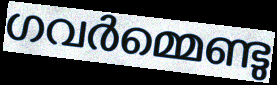
ഗവർമ്മെണ്ടു